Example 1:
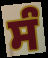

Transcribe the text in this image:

ਸੰ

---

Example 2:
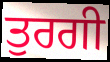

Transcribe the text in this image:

ਤੁਰਗੀ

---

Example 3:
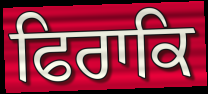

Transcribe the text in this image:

ਫਿਰਾਕਿ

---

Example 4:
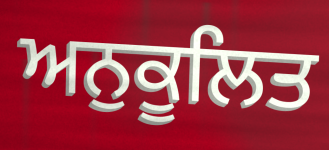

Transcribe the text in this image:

ਅਨੁਕੂਲਿਤ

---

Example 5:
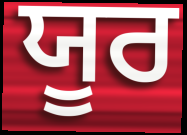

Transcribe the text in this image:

ਯੂਰ